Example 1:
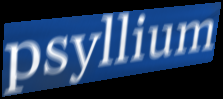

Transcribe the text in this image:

psyllium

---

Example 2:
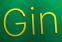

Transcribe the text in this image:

Gin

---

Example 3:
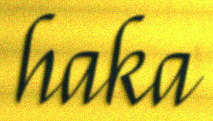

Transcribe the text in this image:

haka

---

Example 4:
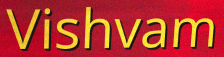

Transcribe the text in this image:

Vishvam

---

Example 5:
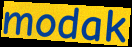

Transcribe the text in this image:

modak